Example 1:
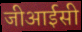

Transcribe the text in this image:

जीआईसी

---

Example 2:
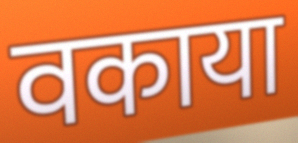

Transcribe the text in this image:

वकाया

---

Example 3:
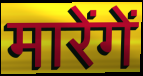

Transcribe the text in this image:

मारेंगें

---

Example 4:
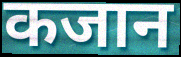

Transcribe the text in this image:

कजान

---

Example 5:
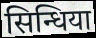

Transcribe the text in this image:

सिन्धिया